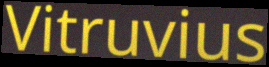
Vitruvius